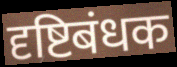
दृष्टिबंधक